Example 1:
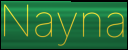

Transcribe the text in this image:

Nayna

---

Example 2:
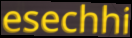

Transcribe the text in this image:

esechhi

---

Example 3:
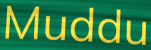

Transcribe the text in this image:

Muddu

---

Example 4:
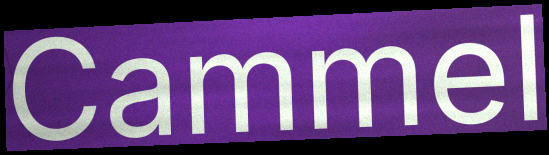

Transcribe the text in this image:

Cammel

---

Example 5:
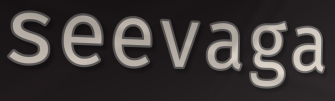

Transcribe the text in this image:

seevaga